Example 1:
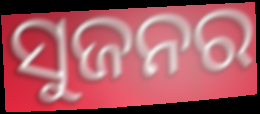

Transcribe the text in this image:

ସୁଜନର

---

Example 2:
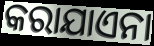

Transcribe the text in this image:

କରାଯାଏନା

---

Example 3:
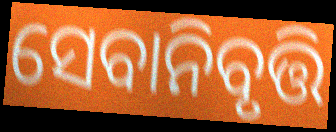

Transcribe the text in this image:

ସେବାନିବୃତ୍ତି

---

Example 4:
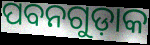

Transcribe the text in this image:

ପବନଗୁଡ଼ାକ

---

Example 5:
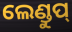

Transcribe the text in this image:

ଲେଣ୍ଡୁପ୍